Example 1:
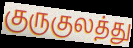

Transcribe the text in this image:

குருகுலத்து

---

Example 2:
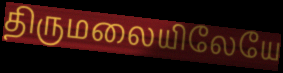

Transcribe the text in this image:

திருமலையிலேயே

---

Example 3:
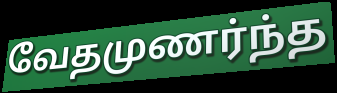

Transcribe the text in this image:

வேதமுணர்ந்த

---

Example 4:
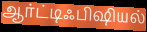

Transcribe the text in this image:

ஆர்ட்டிஃபிஷியல்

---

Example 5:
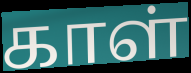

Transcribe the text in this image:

காள்